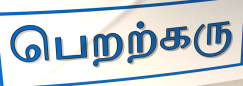
பெறற்கரு